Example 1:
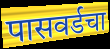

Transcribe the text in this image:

पासवर्डचा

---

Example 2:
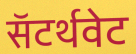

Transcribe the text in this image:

सॅटर्थवेट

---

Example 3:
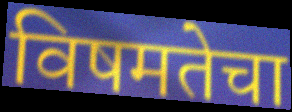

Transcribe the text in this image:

विषमतेचा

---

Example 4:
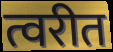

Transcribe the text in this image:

त्वरीत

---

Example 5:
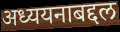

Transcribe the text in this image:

अध्ययनाबद्दल